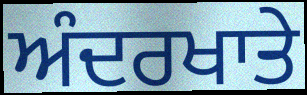
ਅੰਦਰਖਾਤੇ